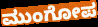
ಮುಂಗೋಪ